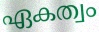
ഏകത്വം